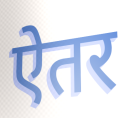
ऐतर